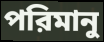
পরিমানু